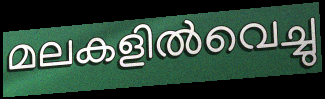
മലകളിൽവെച്ചു